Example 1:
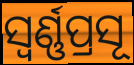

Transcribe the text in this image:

ସ୍ବର୍ଣ୍ଣପ୍ରସୂ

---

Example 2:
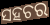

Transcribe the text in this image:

ସହଚର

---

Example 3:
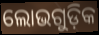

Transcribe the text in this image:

ଲୋଭଗୁଡ଼ିକ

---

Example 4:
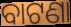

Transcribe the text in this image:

ବାଟଣା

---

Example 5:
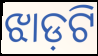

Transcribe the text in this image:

ଝାଡ଼ଟି